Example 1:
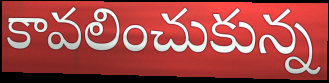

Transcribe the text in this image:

కావలించుకున్న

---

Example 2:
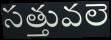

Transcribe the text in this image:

సత్తువలె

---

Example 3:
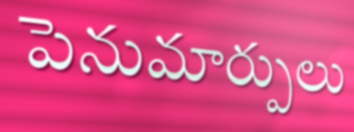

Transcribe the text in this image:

పెనుమార్పులు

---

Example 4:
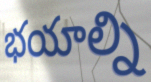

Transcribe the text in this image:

భయాల్ని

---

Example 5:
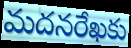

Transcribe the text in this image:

మదనరేఖకు